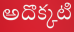
అదొక్కటి